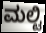
ಮಲ್ಟಿ